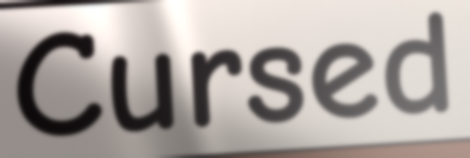
Cursed